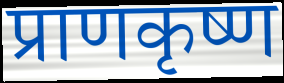
प्राणकृष्ण